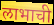
लाभाची